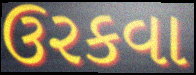
ઉરકવા